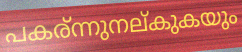
പകര്ന്നുനല്കുകയും